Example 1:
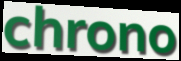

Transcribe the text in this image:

chrono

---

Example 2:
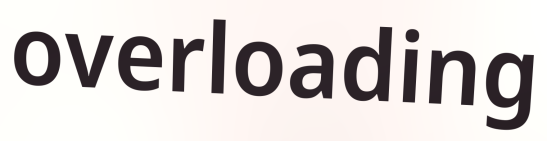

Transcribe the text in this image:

overloading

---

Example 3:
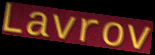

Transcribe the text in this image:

Lavrov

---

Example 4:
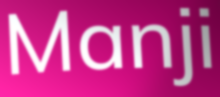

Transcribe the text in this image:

Manji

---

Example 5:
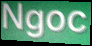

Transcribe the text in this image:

Ngoc